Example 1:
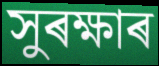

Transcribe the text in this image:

সুৰক্ষাৰ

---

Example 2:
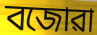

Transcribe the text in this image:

বজোৱা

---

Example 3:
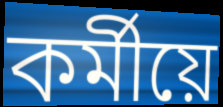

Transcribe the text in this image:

কৰ্মীয়ে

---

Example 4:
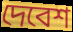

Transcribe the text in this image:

দেবেশ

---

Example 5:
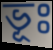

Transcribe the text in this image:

ভূঃ